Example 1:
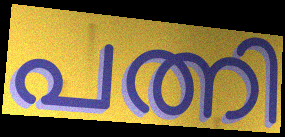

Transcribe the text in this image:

പത്നി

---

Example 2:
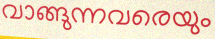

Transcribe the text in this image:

വാങ്ങുന്നവരെയും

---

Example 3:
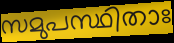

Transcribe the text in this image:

സമുപസ്ഥിതാഃ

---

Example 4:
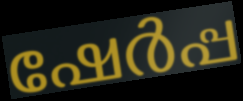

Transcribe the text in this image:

ഷേർപ്പ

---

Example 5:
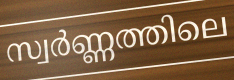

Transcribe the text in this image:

സ്വർണ്ണത്തിലെ